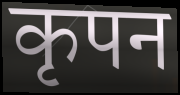
कृपन